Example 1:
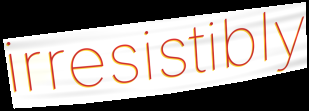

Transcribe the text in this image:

irresistibly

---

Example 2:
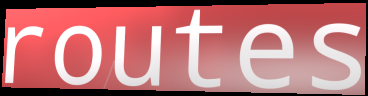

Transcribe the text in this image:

routes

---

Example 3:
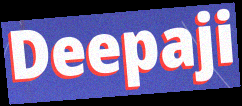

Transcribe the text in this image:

Deepaji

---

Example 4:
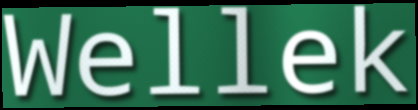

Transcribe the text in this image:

Wellek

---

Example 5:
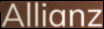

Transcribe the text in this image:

Allianz